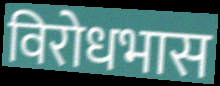
विरोधभास